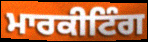
ਮਾਰਕੀਟਿੰਗ